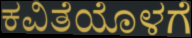
ಕವಿತೆಯೊಳಗೆ